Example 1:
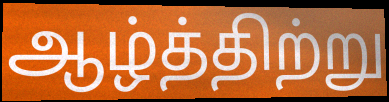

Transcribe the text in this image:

ஆழ்த்திற்று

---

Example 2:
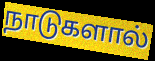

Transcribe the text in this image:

நாடுகளால்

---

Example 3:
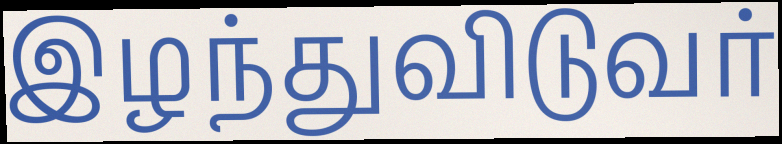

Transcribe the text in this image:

இழந்துவிடுவர்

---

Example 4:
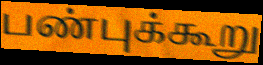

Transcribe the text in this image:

பண்புக்கூறு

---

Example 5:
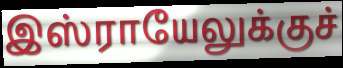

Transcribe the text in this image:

இஸ்ராயேலுக்குச்